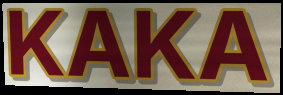
KAKA